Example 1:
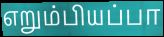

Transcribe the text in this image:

எறும்பியப்பா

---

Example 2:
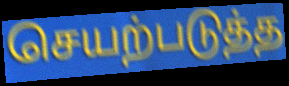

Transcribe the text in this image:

செயற்படுத்த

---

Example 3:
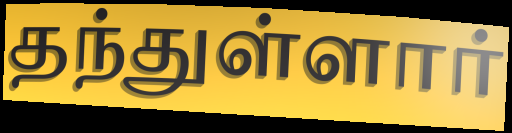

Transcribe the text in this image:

தந்துள்ளார்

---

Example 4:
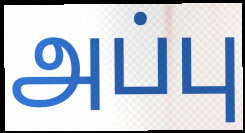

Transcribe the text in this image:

அப்பு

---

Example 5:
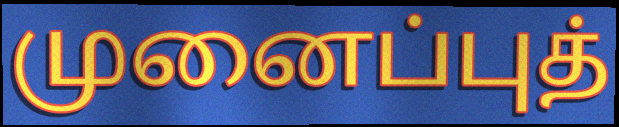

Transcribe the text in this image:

முனைப்புத்